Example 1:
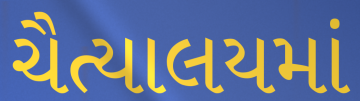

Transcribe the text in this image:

ચૈત્યાલયમાં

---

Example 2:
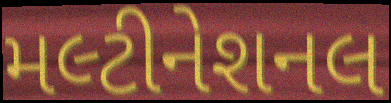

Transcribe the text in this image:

મલ્ટીનેશનલ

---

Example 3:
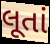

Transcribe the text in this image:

લૂતાં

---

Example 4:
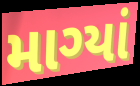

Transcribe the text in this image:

માગ્યાં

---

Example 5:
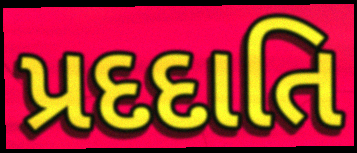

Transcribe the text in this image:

પ્રદદાતિ